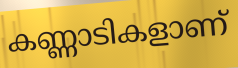
കണ്ണാടികളാണ്